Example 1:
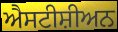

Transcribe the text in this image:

ਐਸਟੀਸ਼ੀਅਨ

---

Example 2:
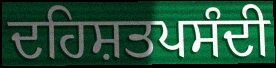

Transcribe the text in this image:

ਦਹਿਸ਼ਤਪਸੰਦੀ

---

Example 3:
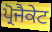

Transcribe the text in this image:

ਪ੍ਰੋਜੈਕੇਟ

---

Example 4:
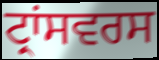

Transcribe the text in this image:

ਟ੍ਰਾਂਸਵਰਸ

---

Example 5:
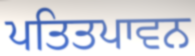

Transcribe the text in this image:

ਪਤਿਤਪਾਵਨ